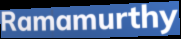
Ramamurthy